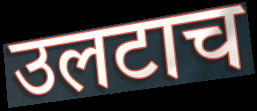
उलटाच